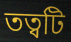
তত্বটি